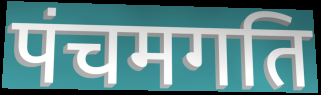
पंचमगति